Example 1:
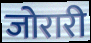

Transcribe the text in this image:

जोरारी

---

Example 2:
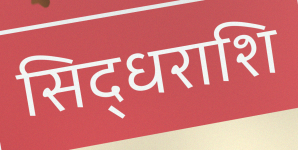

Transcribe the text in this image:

सिद्धराशि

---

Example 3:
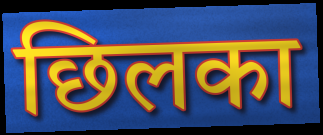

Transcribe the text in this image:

छिलका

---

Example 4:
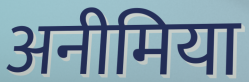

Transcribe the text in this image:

अनीमिया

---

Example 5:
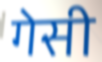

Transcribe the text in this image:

गेसी